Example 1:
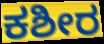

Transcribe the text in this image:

ಕಶೀರ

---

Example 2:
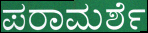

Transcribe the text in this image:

ಪರಾಮರ್ಶೆ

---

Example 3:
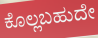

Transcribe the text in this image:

ಕೊಲ್ಲಬಹುದೇ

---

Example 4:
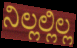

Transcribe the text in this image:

ನಿಲ್ಲಲ್ಲಿಲ್ಲ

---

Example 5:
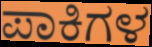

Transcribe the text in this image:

ಪಾಕಿಗಳ